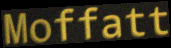
Moffatt